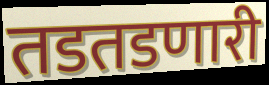
तडतडणारी